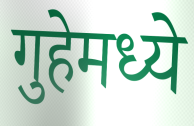
गुहेमध्ये